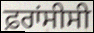
ਫ਼ਰਾਂਸੀਸੀ